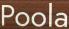
Poola